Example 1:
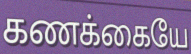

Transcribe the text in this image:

கணக்கையே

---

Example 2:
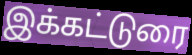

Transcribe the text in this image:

இக்கட்டுரை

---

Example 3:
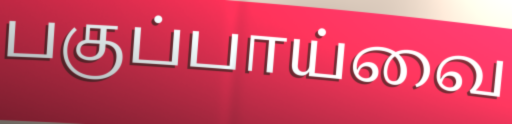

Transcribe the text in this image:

பகுப்பாய்வை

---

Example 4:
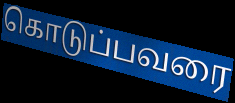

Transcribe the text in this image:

கொடுப்பவரை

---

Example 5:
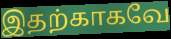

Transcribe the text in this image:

இதற்காகவே